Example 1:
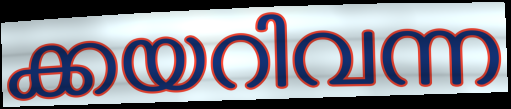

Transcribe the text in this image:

ക്കയറിവന്ന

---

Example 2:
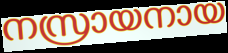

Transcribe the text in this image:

നസ്രായനായ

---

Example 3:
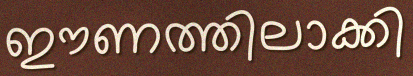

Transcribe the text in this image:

ഈണത്തിലാക്കി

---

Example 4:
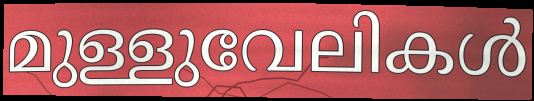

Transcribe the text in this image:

മുള്ളുവേലികൾ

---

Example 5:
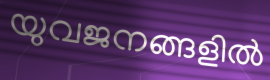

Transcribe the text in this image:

യുവജനങ്ങളിൽ